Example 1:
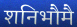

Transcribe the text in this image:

शनिभौमै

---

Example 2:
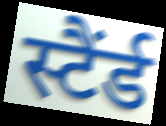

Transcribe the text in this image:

स्टैंर्ड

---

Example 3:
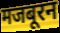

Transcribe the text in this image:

मजबूरन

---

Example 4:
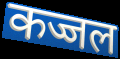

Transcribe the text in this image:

कज्जल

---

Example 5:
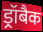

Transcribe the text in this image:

ड्रॉबैक